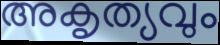
അകൃത്യവും